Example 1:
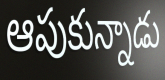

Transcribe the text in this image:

ఆపుకున్నాడు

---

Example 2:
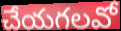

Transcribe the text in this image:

చేయగలవో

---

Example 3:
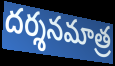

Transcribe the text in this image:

దర్శనమాత్ర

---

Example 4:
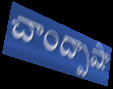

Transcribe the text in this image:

చాంద్పాషా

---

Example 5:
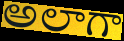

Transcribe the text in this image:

అలాగా